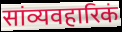
सांव्यवहारिकं